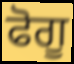
ਫੋਗੂ